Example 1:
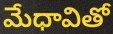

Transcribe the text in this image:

మేధావితో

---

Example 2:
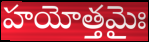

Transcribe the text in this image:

హయోత్తమైః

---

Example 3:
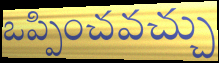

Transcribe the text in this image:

ఒప్పించవచ్చు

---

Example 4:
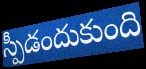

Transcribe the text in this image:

స్పీడందుకుంది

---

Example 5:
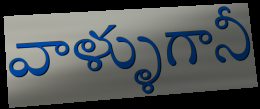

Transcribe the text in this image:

వాళ్ళుగానీ